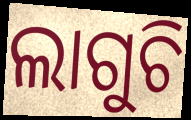
ଲାଗୁଚି